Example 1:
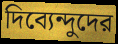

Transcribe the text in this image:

দিব্যেন্দুদের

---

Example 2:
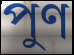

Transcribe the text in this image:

পুণ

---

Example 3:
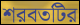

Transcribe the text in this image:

শরবতটির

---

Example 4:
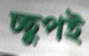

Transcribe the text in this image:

চ্ছুপই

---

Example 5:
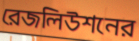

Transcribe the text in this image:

রেজলিউশনের